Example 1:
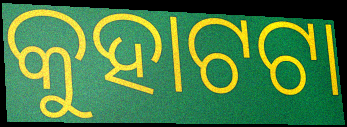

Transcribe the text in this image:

କୁହାଟଟା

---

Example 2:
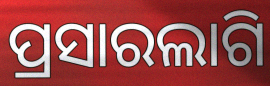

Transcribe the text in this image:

ପ୍ରସାରଲାଗି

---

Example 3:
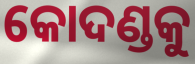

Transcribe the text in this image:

କୋଦଣ୍ଡକୁ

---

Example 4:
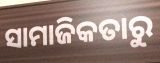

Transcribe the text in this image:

ସାମାଜିକତାରୁ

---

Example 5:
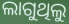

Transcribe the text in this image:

ଲାଗୁଥିଲୁ